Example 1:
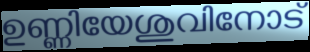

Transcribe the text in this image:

ഉണ്ണിയേശുവിനോട്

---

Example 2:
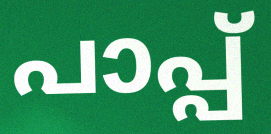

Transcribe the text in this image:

പാപ്പ്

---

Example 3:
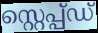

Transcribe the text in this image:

സ്റ്റെപ്പ്ഡ്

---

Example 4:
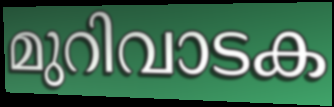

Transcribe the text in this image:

മുറിവാടക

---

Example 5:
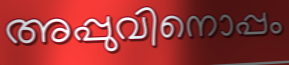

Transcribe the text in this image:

അപ്പുവിനൊപ്പം